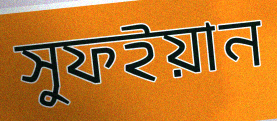
সুফইয়ান